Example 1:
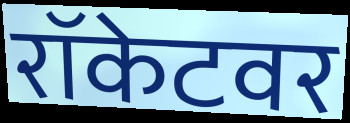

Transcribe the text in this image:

रॉकेटवर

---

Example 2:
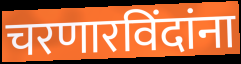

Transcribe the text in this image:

चरणारविंदांना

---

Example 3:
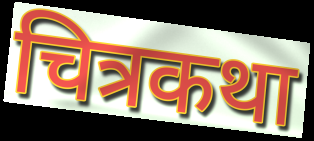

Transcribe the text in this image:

चित्रकथा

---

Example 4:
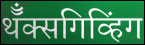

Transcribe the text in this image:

थॅँक्सगिव्हिंग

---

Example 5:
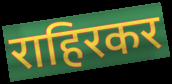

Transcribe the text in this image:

राहिरकर